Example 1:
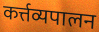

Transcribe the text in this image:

कर्त्तव्यपालन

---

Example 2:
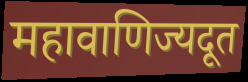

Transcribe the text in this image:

महावाणिज्यदूत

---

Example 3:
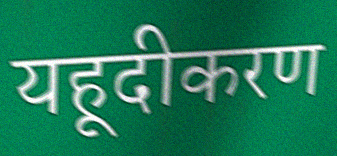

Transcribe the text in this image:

यहूदीकरण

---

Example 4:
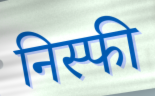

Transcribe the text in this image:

निस्फी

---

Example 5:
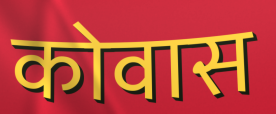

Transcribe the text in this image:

कोवास